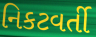
નિકટવર્તી